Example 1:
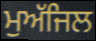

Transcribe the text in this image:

ਮੁਅੱਜਿਲ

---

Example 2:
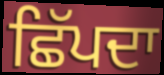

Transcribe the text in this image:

ਛਿੱਪਦਾ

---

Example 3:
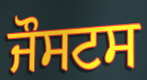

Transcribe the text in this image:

ਜੌਸਟਸ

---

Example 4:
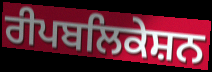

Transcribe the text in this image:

ਰੀਪਬਲਿਕੇਸ਼ਨ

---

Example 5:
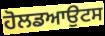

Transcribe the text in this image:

ਹੋਲਡਆਉਟਸ